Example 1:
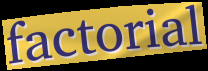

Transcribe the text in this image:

factorial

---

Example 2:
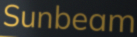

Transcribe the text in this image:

Sunbeam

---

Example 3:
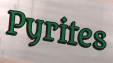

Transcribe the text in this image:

Pyrites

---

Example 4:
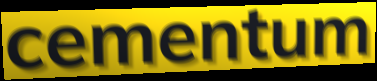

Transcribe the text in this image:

cementum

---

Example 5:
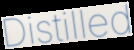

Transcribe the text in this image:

Distilled